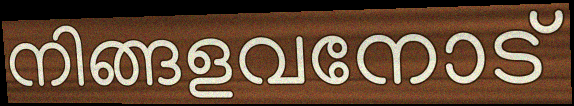
നിങ്ങളവനോട്